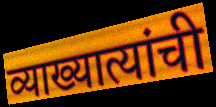
व्याख्यात्यांची